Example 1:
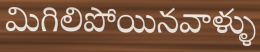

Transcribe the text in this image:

మిగిలిపోయినవాళ్ళు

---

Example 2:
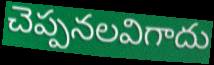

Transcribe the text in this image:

చెప్పనలవిగాదు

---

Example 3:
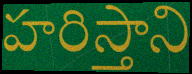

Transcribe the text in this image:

హరిస్తాని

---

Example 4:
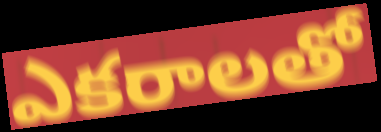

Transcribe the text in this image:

ఎకరాలతో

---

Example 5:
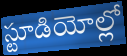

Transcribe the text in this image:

స్టూడియోల్లో